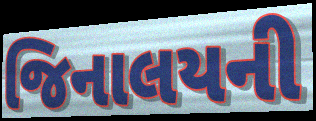
જિનાલયની